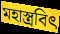
মহাস্ত্রবিৎ